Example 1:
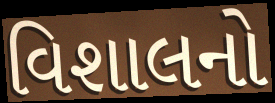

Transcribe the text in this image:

વિશાલનો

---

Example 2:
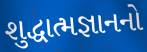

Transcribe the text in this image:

શુદ્ધાત્મજ્ઞાનનો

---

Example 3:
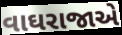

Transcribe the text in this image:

વાઘરાજાએ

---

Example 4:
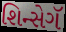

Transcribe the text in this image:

શિન્સેગૅ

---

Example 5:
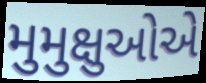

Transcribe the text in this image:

મુમુક્ષુઓએ